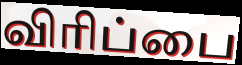
விரிப்பை